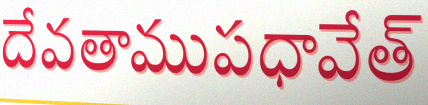
దేవతాముపధావేత్